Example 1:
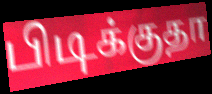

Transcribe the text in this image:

பிடிக்குதா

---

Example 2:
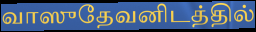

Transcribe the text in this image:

வாஸுதேவனிடத்தில்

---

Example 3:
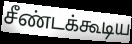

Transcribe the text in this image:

சீண்டக்கூடிய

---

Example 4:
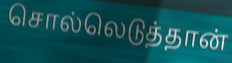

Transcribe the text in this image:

சொல்லெடுத்தான்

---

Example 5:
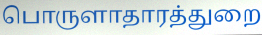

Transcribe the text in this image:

பொருளாதாரத்துறை